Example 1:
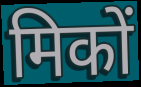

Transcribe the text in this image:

मिकों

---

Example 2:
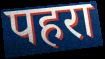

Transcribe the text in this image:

पहरा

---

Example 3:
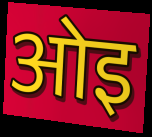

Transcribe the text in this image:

ओइ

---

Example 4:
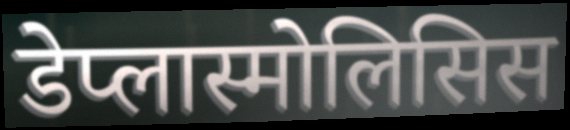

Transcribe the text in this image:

डेप्लास्मोलिसिस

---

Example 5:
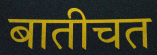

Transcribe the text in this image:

बातीचत